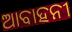
ଆବାହନୀ